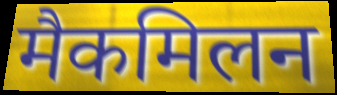
मैकमिलन